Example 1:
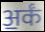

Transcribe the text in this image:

अ॒र्कं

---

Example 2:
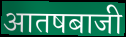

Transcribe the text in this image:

आतषबाजी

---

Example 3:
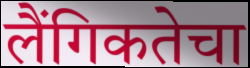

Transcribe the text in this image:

लैंगिकतेचा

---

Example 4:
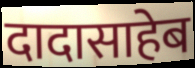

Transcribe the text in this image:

दादासाहेब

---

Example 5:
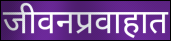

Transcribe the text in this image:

जीवनप्रवाहात